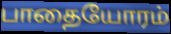
பாதையோரம்